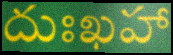
దుఃఖహా